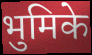
भुमिके